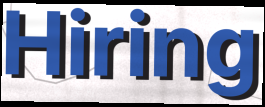
Hiring